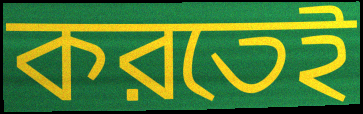
করতেই